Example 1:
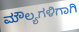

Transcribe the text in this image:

ಮೌಲ್ಯಗಳಿಗಾಗಿ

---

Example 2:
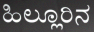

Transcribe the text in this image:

ಹಿಲ್ಲೂರಿನ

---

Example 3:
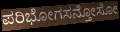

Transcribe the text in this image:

ಪರಿಭೋಗಸನ್ತೋಸೋ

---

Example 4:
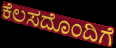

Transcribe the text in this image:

ಕೆಲಸದೊಂದಿಗೆ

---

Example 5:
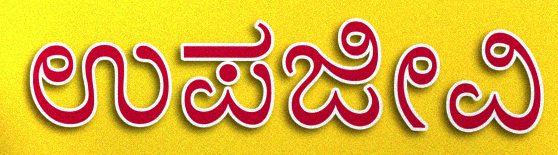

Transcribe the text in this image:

ಉಪಜೀವಿ